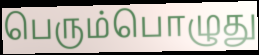
பெரும்பொழுது